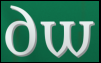
dw